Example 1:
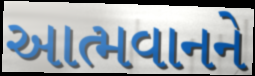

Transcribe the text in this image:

આત્મવાનને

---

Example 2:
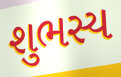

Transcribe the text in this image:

શુભસ્ય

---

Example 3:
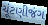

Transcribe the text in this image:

ચૂંટણીજંગ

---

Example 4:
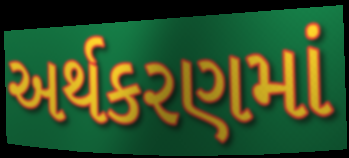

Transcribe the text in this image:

અર્થકરણમાં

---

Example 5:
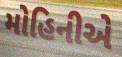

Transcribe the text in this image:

મોહિનીએ